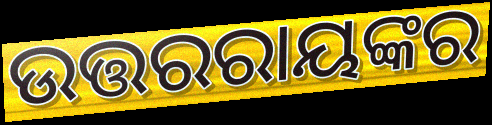
ଉତ୍ତରରାୟଙ୍କର